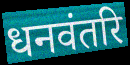
धनवंतरि